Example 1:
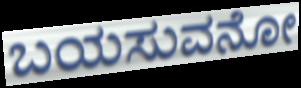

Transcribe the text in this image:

ಬಯಸುವನೋ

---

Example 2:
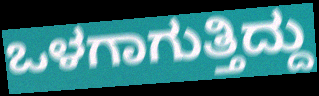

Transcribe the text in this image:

ಒಳಗಾಗುತ್ತಿದ್ದು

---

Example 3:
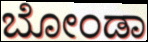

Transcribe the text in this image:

ಬೋಂಡಾ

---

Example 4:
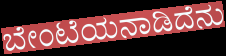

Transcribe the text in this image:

ಬೇಂಟೆಯನಾಡಿದೆನು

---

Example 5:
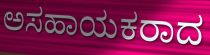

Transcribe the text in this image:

ಅಸಹಾಯಕರಾದ